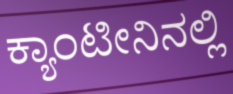
ಕ್ಯಾಂಟೀನಿನಲ್ಲಿ